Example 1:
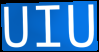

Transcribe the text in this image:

UIU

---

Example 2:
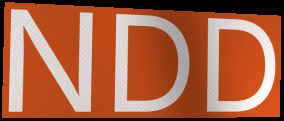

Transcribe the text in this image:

NDD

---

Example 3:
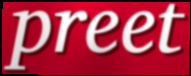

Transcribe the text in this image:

preet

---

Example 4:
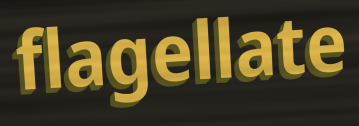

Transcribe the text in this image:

flagellate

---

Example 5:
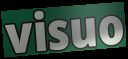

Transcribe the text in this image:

visuo